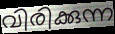
വിരിക്കുന്ന